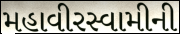
મહાવીરસ્વામીની